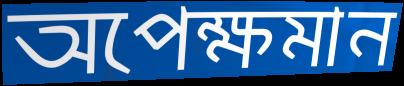
অপেক্ষমান